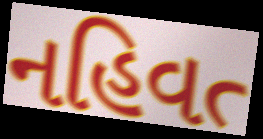
નહિવત્‍